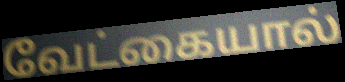
வேட்கையால்